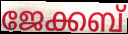
ജേക്കബ്